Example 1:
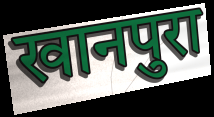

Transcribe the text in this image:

खानपुरा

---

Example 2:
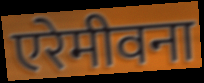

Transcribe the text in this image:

एरेमीवना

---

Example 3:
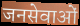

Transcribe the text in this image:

जनसेवाओं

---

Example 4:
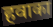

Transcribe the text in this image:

हवाका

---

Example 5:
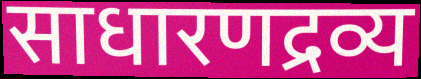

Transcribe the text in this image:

साधारणद्रव्य